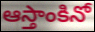
ఆస్తాంకినో